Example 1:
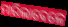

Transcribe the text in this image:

ମାରିଲାବେଳେ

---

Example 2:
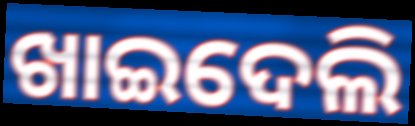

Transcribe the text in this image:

ଖାଇଦେଲି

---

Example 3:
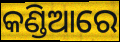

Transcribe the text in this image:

କଣ୍ଡିଆରେ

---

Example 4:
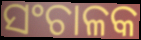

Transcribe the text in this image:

ସଂଚାଳକ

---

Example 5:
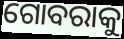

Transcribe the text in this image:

ଗୋବରାକୁ